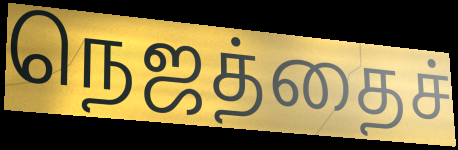
நெஜத்தைச்